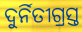
ଦୁର୍ନିତୀଗ୍ରସ୍ତ